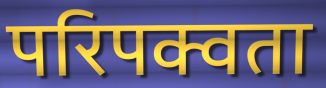
परिपक्वता